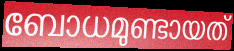
ബോധമുണ്ടായത്